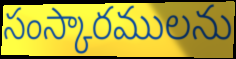
సంస్కారములను